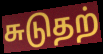
சுடுதற்